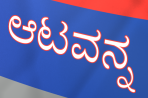
ಆಟವನ್ನ